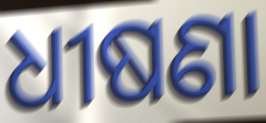
ଧୀଷଣା